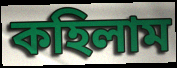
কহিলাম